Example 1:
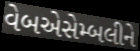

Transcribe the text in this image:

વેબએસેમ્બલીને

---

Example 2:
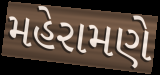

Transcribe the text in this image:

મહેરામણે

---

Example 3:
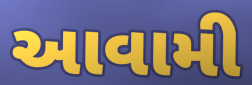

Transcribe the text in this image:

આવામી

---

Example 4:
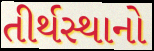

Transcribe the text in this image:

તીર્થસ્થાનો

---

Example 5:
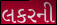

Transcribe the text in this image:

લકરની